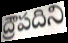
ద్రౌపదిని